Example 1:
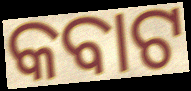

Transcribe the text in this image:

କବାଟ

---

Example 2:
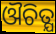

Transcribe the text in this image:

ଔଚିତ୍ଯ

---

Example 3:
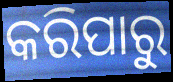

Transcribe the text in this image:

କରିପାରୁ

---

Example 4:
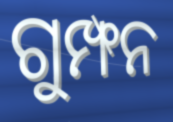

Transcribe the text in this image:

ଗୁମ୍ଫନ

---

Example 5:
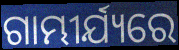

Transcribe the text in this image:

ଗାମ୍ଭୀର୍ଯ୍ୟରେ